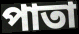
পাতা